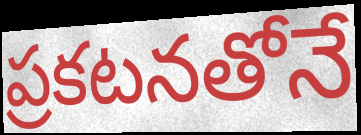
ప్రకటనతోనే